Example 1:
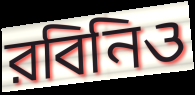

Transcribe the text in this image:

রবিনিও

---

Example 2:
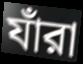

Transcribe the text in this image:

যাঁরা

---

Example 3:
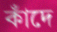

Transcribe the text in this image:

কাঁদে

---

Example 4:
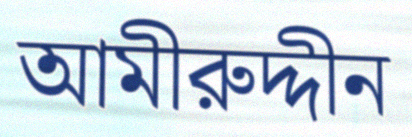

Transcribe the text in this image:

আমীরুদ্দীন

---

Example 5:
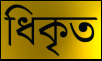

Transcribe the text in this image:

ধিকৃত